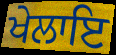
ਖੇਲਾਇ